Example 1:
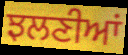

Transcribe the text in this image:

ਝਲਣੀਆਂ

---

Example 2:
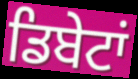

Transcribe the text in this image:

ਡਿਬੇਟਾਂ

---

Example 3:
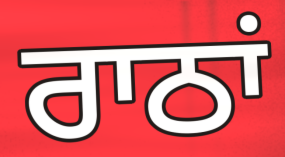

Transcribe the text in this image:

ਰਾਠਾਂ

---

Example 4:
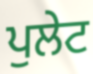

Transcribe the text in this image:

ਪੁਲੇਟ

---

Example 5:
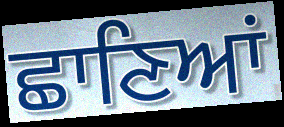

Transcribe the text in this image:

ਛਾਣਿਆਂ